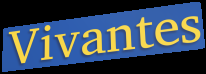
Vivantes